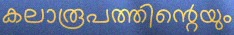
കലാരൂപത്തിന്റെയും